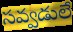
సవ్వడులే